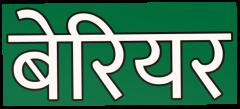
बेरियर